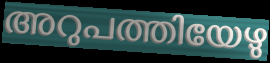
അറുപത്തിയേഴു